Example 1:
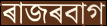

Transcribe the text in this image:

ৰাজৰবাগ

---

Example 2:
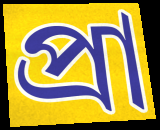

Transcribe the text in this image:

প্ৰা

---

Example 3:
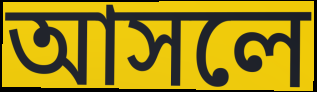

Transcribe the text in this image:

আসলে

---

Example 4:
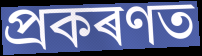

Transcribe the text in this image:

প্ৰকৰণত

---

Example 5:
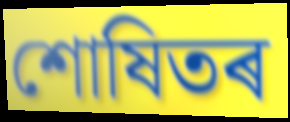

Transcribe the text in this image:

শোষিতৰ